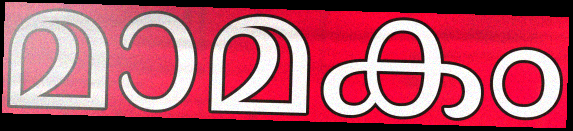
മാമകം